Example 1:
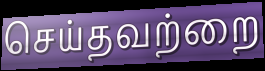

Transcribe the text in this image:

செய்தவற்றை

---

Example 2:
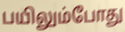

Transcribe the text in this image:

பயிலும்போது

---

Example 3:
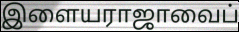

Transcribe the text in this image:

இளையராஜாவைப்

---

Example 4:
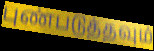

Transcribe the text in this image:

புண்படுத்தவும்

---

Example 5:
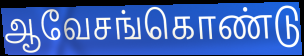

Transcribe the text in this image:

ஆவேசங்கொண்டு